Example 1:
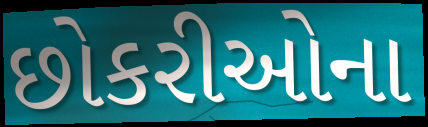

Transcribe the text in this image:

છોકરીઓના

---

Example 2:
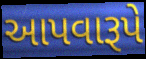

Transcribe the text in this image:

આપવારૂપે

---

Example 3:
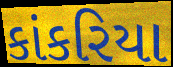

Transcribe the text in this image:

કાંકરિયા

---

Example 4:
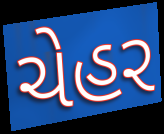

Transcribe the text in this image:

ચેહર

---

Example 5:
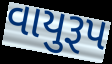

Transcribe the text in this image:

વાયુરૂપ